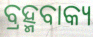
ବ୍ରହ୍ମବାକ୍ୟ